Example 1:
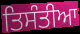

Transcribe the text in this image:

ਤਿਸੰਤੀਆ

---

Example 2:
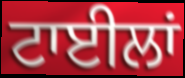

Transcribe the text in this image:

ਟਾਈਲਾਂ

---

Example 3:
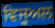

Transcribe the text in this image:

ਵਿਜੂਅਲ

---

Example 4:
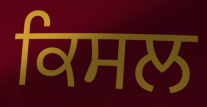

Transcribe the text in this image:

ਕਿਸਲ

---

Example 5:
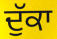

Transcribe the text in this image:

ਦੁੱਕਾ